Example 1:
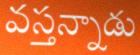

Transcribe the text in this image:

వస్తన్నాడు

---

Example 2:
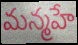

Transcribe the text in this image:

మన్మహే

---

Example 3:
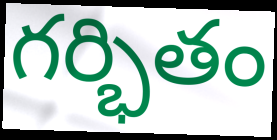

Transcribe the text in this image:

గర్భితం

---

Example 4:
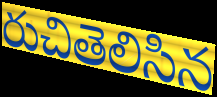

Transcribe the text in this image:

రుచితెలిసిన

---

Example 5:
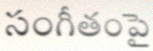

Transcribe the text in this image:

సంగీతంపై